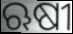
ଋଷୀ